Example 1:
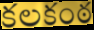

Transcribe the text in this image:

కలకంఠ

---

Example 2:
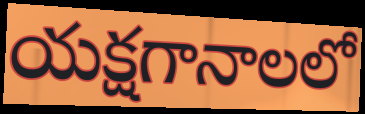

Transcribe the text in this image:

యక్షగానాలలో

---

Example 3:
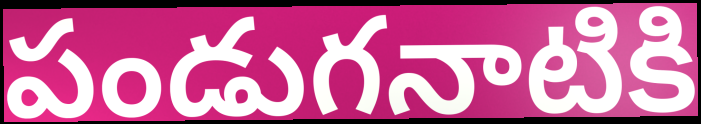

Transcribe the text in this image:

పండుగనాటికి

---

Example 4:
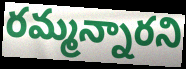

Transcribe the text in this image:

రమ్మన్నారని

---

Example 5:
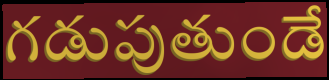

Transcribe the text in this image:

గడుపుతుండే